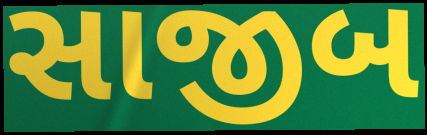
સાજીબ